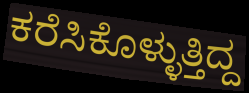
ಕರೆಸಿಕೊಳ್ಳುತ್ತಿದ್ದ